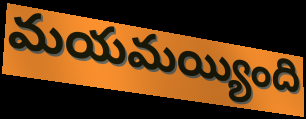
మయమయ్యింది